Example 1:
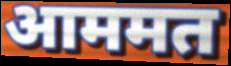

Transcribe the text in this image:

आममत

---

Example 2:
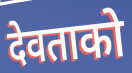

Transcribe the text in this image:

देवताको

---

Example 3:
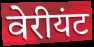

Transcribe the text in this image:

वेरीयंट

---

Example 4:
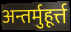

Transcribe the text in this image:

अन्तर्मुहूर्त्त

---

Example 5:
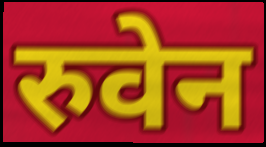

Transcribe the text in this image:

रुवेन